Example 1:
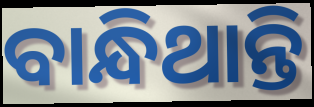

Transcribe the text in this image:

ବାନ୍ଧିଥାନ୍ତି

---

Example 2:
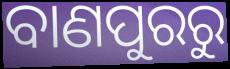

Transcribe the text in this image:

ବାଣପୁରରୁ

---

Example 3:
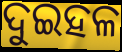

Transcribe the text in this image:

ଦୁଇହଳ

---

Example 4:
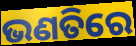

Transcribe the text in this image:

ଭଣତିରେ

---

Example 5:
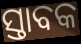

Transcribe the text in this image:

ସ୍ତାବକ